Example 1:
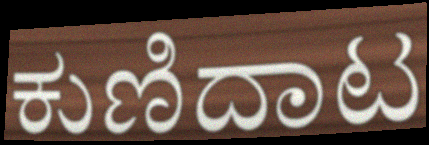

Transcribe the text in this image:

ಕುಣಿದಾಟ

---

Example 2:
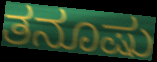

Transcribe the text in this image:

ತನೂಷು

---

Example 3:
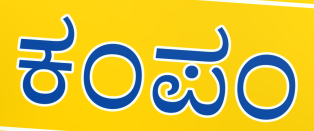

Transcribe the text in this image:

ಕಂಪಂ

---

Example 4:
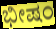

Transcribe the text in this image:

ಭೀಷಂ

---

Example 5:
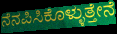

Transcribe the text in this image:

ನೆನಪಿಸಿಕೊಳ್ಳುತ್ತೇನೆ